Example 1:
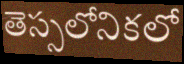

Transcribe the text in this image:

తెస్సలోనికలో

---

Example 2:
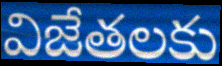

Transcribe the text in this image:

విజేతలకు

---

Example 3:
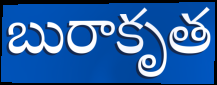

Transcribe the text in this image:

బురాకృత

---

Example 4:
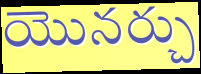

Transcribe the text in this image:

యొనర్చు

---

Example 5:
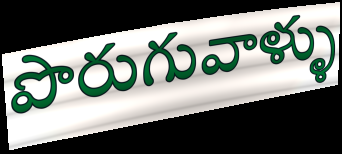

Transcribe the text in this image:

పొరుగువాళ్ళు